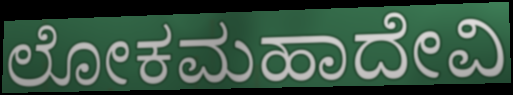
ಲೋಕಮಹಾದೇವಿ